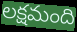
లక్షమంది